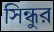
সিন্ধুর